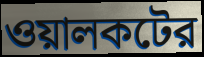
ওয়ালকটের